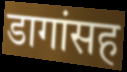
डागांसह